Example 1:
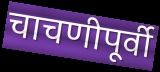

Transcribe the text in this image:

चाचणीपूर्वी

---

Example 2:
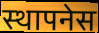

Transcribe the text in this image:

स्थापनेस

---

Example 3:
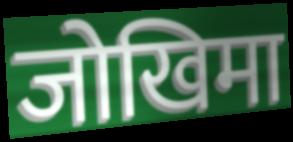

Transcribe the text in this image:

जोखिमा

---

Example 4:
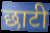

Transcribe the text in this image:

छाटी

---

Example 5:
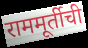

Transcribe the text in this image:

राममूर्तीची